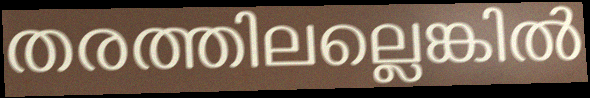
തരത്തിലല്ലെങ്കിൽ